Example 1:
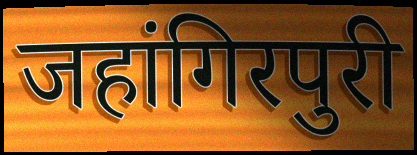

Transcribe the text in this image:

जहांगिरपुरी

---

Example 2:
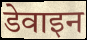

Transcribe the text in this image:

डेवाइन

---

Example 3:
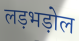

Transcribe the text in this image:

लड़भड़ोल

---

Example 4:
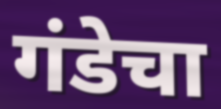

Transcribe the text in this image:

गंडेचा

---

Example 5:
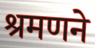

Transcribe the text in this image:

श्रमणने